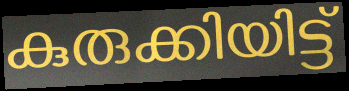
കുരുക്കിയിട്ട്